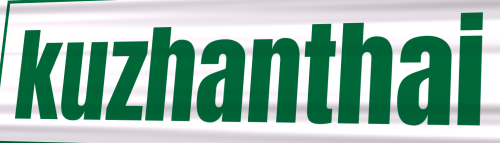
kuzhanthai